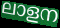
ലാളന